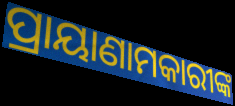
ପ୍ରାୟାଣାମକାରୀଙ୍କ